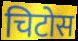
चिटोस